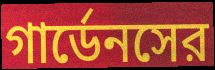
গার্ডেনসের